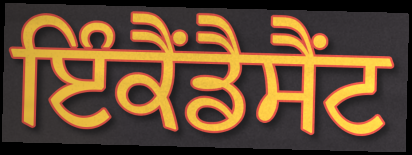
ਇੰਕੈਂਡੈਸੈਂਟ